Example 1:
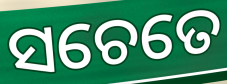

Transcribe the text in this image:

ସଚେତେ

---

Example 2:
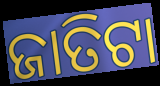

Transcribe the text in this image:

ଜାତିଟା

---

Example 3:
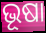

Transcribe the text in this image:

ଭୂଷା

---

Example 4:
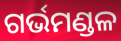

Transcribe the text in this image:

ଗର୍ଭମଣ୍ଡଳ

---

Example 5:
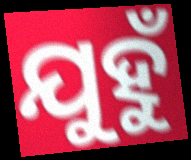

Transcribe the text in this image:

ଯୁହୁଁ